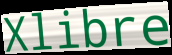
Xlibre